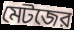
মেটজের